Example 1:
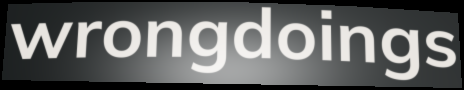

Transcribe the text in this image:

wrongdoings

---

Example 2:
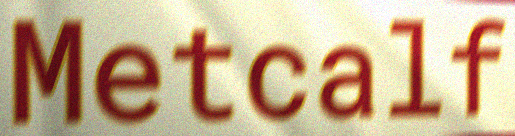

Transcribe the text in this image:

Metcalf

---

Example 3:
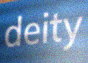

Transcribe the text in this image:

deity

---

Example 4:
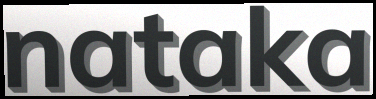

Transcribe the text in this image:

nataka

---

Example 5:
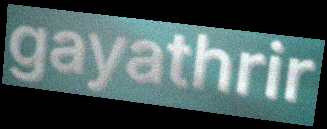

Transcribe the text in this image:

gayathrir